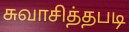
சுவாசித்தபடி